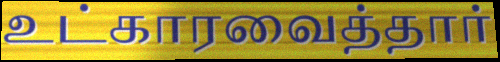
உட்காரவைத்தார்